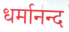
धर्मानन्द